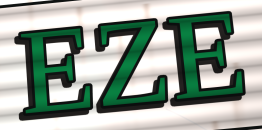
EZE